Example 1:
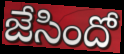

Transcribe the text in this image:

జేసిందో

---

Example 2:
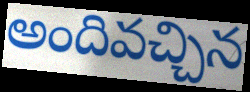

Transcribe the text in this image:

అందివచ్చిన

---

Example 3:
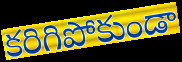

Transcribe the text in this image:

కరిగిపోకుండా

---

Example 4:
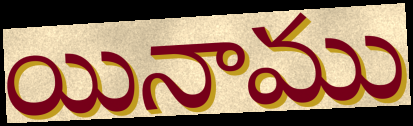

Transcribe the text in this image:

యినాము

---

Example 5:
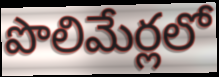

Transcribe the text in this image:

పొలిమేర్లలో